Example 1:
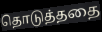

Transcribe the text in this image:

தொடுத்ததை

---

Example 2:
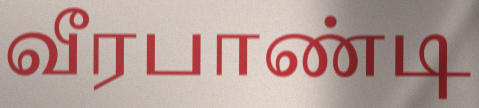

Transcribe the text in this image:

வீரபாண்டி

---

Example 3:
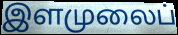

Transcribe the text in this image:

இளமுலைப்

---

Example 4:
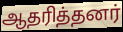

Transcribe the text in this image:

ஆதரித்தனர்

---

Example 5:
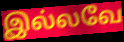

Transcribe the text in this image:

இல்லவே